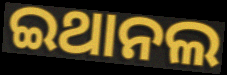
ଇଥାନଲ